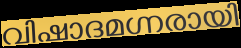
വിഷാദമഗ്നരായി